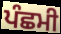
ਪੰਛਮੀ